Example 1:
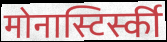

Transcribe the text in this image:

मोनास्टिर्स्की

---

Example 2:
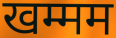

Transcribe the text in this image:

खम्मम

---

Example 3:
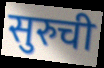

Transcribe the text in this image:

सुरुची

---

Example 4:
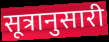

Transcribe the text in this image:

सूत्रानुसारी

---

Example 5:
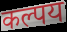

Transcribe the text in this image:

कल्पय